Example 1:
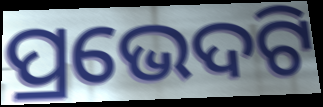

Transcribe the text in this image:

ପ୍ରଭେଦଟି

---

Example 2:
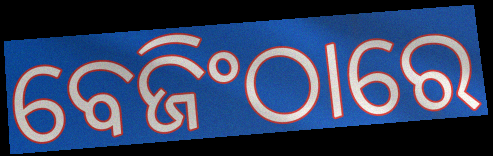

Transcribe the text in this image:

ବେଜିଂଠାରେ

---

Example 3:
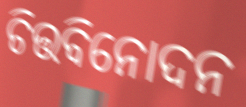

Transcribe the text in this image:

ଚିତ୍ତବିନୋଦନ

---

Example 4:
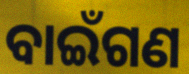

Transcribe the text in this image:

ବାଇଁଗଣ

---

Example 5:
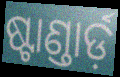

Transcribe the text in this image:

ଷ୍ଟାଣ୍ଡାର୍ଡ଼